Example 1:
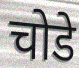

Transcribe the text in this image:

चोडे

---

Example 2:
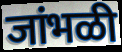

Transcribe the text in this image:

जांभळी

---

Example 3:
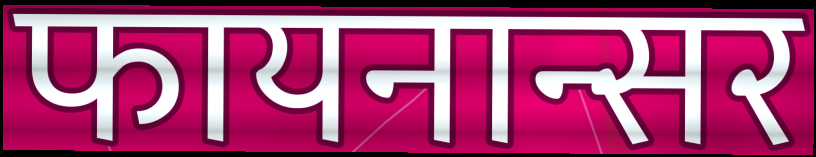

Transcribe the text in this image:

फायनान्सर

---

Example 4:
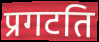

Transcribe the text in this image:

प्रगटति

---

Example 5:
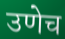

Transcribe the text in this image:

उणेच